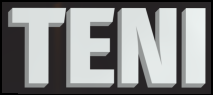
TENI